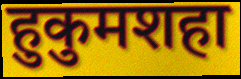
हुकुमशहा